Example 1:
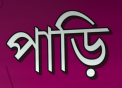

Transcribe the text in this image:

পাড়ি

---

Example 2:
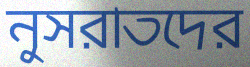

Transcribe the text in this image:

নুসরাতদের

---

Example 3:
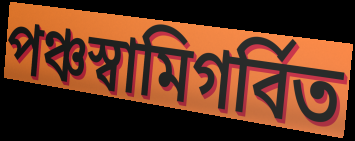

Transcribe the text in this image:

পঞ্চস্বামিগর্বিত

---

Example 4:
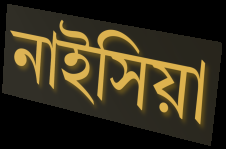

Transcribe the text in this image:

নাইসিয়া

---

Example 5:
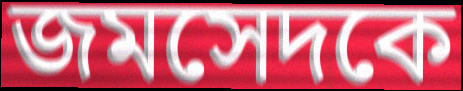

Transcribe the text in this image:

জমসেদকে